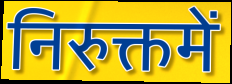
निरुक्तमें